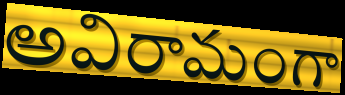
అవిరామంగా